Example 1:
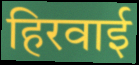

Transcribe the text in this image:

हिरवाई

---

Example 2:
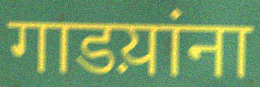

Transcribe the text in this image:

गाडय़ांना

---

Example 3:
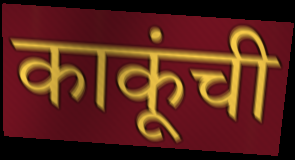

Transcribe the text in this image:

काकूंची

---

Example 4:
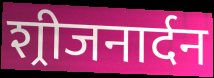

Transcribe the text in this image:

श्रीजनार्दन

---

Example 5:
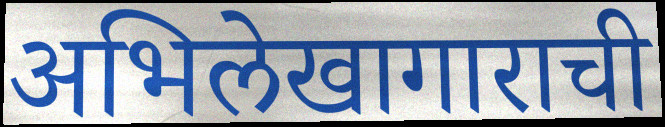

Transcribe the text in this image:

अभिलेखागाराची